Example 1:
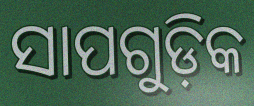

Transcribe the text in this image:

ସାପଗୁଡ଼ିକ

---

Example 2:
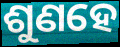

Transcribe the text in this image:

ଶୁଣହେ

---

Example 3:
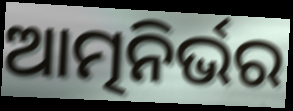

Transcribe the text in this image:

ଆତ୍ମନିର୍ଭର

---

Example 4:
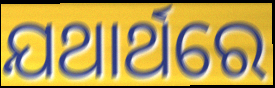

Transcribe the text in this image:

ଯଥାର୍ଥରେ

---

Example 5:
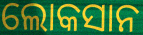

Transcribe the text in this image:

ଲୋକସାନ